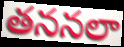
తననలా